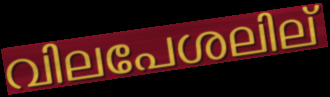
വിലപേശലില്